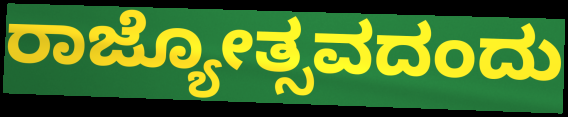
ರಾಜ್ಯೋತ್ಸವದಂದು